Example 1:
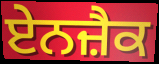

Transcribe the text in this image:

ਏਨਜ਼ੈਕ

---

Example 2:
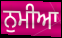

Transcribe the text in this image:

ਨੁਮੀਆ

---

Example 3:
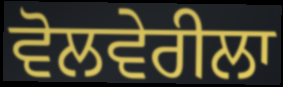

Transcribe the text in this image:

ਵੋਲਵੇਰੀਲਾ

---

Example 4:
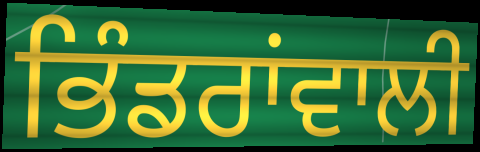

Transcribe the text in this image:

ਭਿੰਡਰਾਂਵਾਲੀ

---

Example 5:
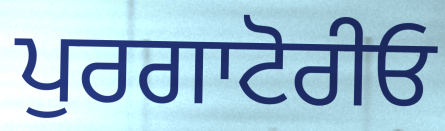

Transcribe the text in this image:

ਪੁਰਗਾਟੋਰੀਓ